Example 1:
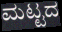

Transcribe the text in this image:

ಮಟ್ಟದ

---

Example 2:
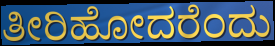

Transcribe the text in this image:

ತೀರಿಹೋದರೆಂದು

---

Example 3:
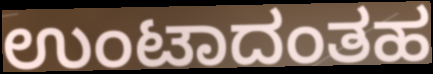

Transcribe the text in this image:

ಉಂಟಾದಂತಹ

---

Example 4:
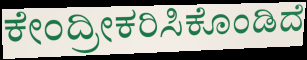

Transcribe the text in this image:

ಕೇಂದ್ರೀಕರಿಸಿಕೊಂಡಿದೆ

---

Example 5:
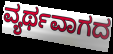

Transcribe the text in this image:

ವ್ಯರ್ಥವಾಗದ